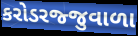
કરોડરજ્જુવાળા